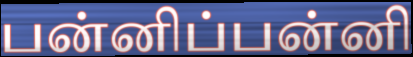
பன்னிப்பன்னி